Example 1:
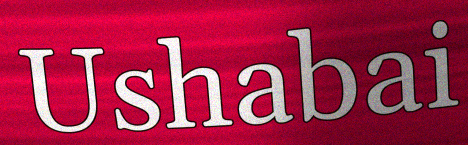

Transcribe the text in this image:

Ushabai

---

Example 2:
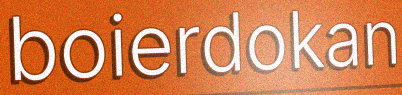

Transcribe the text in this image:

boierdokan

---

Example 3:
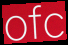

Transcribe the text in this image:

ofc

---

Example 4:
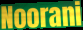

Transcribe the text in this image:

Noorani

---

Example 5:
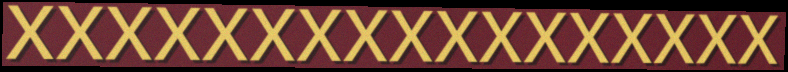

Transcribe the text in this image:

xxxxxxxxxxxxxxxxx